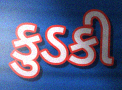
કુડકી